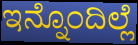
ಇನ್ನೊಂದಿಲ್ಲೆ